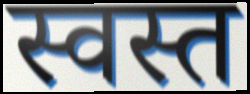
स्वस्त